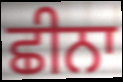
ਛੀਨਾ